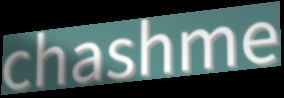
chashme